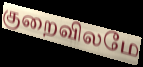
குறைவிலமே